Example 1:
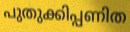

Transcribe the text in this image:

പുതുക്കിപ്പണിത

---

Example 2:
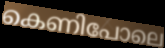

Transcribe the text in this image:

കെണിപോലെ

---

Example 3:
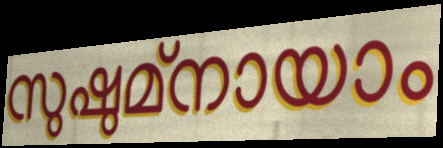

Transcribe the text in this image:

സുഷുമ്നായാം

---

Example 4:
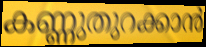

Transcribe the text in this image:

കണ്ണുതുറക്കാൻ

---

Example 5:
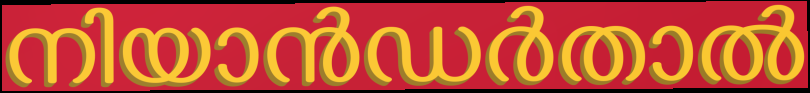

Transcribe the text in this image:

നിയാൻഡർതാൽ